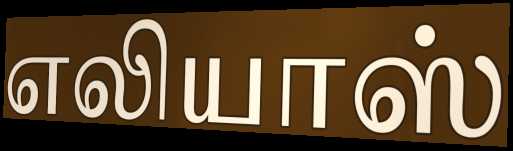
எலியாஸ்